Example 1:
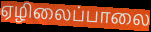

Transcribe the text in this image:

ஏழிலைப்பாலை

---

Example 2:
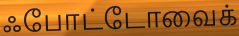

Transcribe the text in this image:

ஃபோட்டோவைக்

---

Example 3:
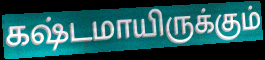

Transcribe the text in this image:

கஷ்டமாயிருக்கும்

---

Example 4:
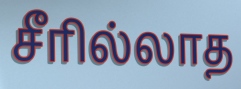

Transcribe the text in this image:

சீரில்லாத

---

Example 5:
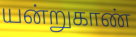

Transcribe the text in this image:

யன்றுகாண்